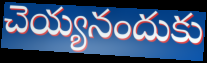
చెయ్యనందుకు